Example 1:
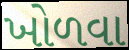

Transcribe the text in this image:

ખોળવા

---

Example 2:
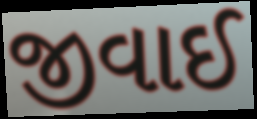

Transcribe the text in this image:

જીવાઈ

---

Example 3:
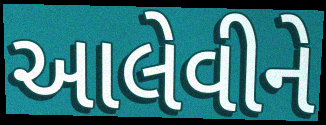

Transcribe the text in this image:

આલેવીને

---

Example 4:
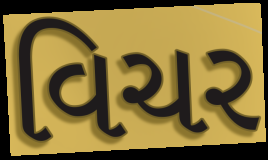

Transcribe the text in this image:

વિચર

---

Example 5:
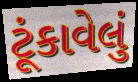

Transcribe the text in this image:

ટૂંકાવેલું